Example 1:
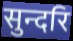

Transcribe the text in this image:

सुन्दरि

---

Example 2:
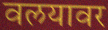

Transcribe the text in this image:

वलयावर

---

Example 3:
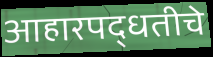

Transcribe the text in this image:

आहारपद्धतीचे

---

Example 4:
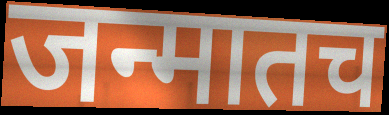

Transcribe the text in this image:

जन्मातच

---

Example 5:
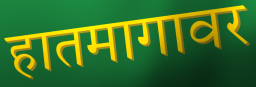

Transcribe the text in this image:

हातमागावर